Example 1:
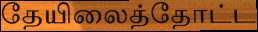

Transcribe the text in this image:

தேயிலைத்தோட்ட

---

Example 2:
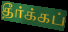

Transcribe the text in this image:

தீர்க்கப்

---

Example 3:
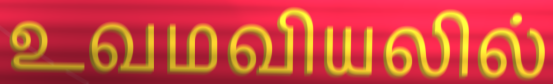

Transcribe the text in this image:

உவமவியலில்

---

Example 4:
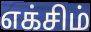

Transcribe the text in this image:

எக்சிம்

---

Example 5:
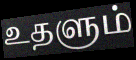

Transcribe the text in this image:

உதளும்